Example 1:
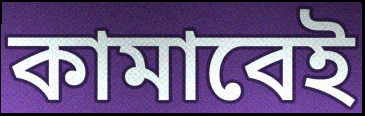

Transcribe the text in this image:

কামাবেই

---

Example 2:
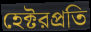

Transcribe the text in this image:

হেক্টরপ্রতি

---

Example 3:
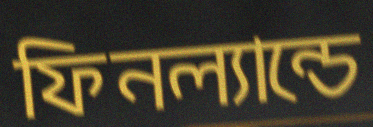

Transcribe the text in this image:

ফিনল্যান্ডে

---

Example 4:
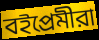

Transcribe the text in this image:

বইপ্রেমীরা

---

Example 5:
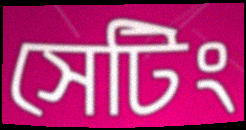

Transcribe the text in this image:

সেটিং